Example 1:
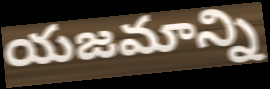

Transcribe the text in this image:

యజమాన్ని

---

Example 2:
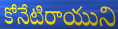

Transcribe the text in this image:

కోనేటిరాయుని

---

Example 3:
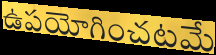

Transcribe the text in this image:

ఉపయోగించటమే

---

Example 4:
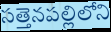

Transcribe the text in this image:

సత్తెనపల్లిలోని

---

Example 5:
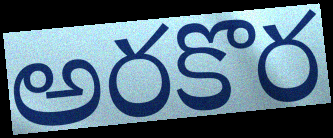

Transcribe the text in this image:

అరకొర